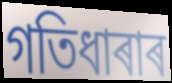
গতিধাৰাৰ